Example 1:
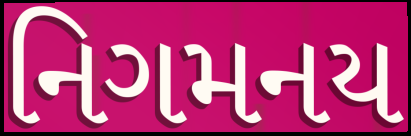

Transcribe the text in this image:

નિગમનય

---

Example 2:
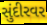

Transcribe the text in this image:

સુંદીરવર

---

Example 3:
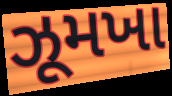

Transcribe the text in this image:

ઝૂમખા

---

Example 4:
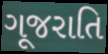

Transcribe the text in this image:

ગૂજરાતિ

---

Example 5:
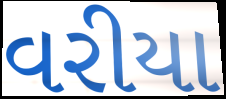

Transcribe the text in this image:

વરીયા